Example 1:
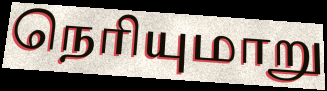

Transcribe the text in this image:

நெரியுமாறு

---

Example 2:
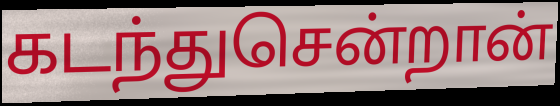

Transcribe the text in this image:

கடந்துசென்றான்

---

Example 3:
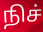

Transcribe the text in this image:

நிச்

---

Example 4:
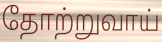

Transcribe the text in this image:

தோற்றுவாய்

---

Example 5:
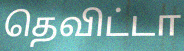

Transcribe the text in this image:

தெவிட்டா